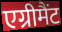
एग्रीमैंट